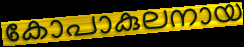
കോപാകുലനായ